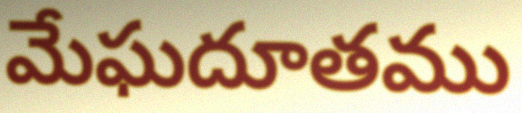
మేఘదూతము